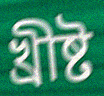
খ্ৰীষ্ট